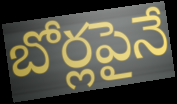
బోర్లపైనే